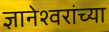
ज्ञानेश्वरांच्या